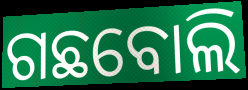
ଗଛବୋଲି